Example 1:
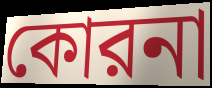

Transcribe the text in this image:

কোরনা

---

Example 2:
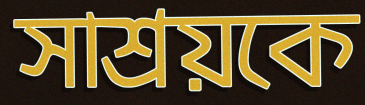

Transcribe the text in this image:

সাশ্রয়কে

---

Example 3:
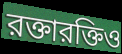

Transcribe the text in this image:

রক্তারক্তিও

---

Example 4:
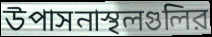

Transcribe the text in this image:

উপাসনাস্থলগুলির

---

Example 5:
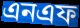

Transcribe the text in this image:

এনএফ